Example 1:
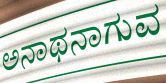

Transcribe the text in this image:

ಅನಾಥನಾಗುವ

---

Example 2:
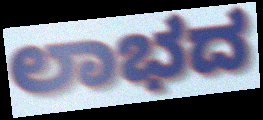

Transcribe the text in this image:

ಲಾಭದ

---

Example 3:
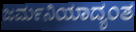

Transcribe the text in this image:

ಜರ್ಮನಿಯಾದ್ಯಂತ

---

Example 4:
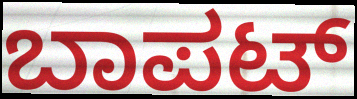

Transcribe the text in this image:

ಬಾಪಟ್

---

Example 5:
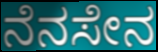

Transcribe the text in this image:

ನೆನಸೇನ